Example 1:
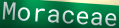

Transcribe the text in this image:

Moraceae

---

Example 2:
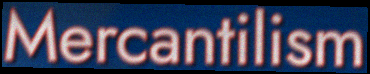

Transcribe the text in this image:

Mercantilism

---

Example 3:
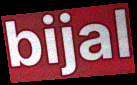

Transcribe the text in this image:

bijal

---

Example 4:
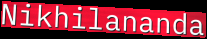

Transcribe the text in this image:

Nikhilananda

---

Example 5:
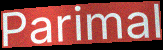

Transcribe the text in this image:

Parimal